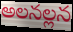
అలనల్లన